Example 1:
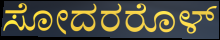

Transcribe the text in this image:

ಸೋದರರೊಳ್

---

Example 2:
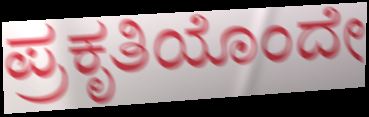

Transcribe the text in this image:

ಪ್ರಕೃತಿಯೊಂದೇ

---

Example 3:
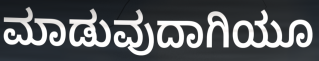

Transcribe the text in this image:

ಮಾಡುವುದಾಗಿಯೂ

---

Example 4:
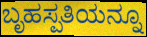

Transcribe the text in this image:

ಬೃಹಸ್ಪತಿಯನ್ನೂ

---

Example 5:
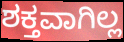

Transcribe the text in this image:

ಶಕ್ತವಾಗಿಲ್ಲ